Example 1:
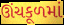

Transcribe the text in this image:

ઊંચકૂળમાં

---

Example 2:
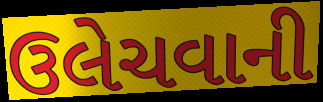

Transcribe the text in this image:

ઉલેચવાની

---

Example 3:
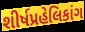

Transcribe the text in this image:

શીર્ષપ્રહેલિકાંગ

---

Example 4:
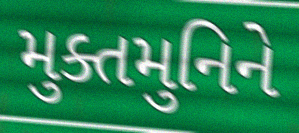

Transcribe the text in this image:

મુક્તમુનિને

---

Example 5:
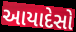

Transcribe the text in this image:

આયાદેસો